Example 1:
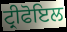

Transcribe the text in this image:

ਟ੍ਰੀਫੋਇਲ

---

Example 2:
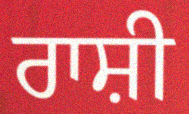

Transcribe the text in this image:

ਰਾਸ਼ੀ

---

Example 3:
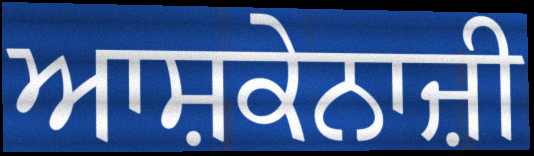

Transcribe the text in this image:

ਆਸ਼ਕੇਨਾਜ਼ੀ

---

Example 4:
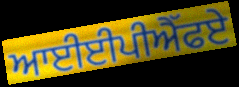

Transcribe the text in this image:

ਆਈਈਪੀਐੱਫਏ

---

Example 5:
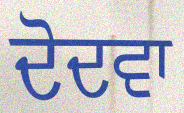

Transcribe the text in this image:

ਦੋਦਵਾ